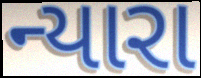
ન્યારા